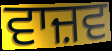
ਵਾਜ਼ਵ